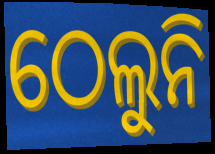
ଠେଲୁନି